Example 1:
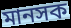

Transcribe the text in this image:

মানসক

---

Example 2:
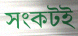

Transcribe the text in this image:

সংকটই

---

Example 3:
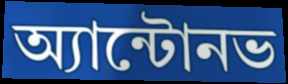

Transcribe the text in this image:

অ্যান্টোনভ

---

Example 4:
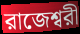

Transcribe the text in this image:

রাজেশ্বরী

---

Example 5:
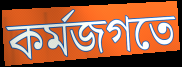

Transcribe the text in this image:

কর্মজগতে